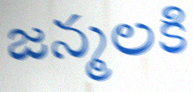
జన్మలకి